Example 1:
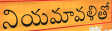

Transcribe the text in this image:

నియమావళితో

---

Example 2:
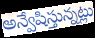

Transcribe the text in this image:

అన్వేషిస్తున్నట్లు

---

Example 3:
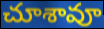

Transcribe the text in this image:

చూశావూ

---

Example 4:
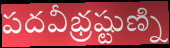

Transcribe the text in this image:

పదవీభ్రష్టుణ్ని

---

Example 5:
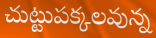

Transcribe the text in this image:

చుట్టుపక్కలవున్న